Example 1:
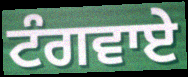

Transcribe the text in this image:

ਟੰਗਵਾਏ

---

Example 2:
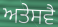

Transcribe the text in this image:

ਅਤੇਸਵੈ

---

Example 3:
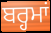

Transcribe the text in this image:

ਬਰ੍ਹਮਾਂ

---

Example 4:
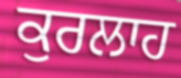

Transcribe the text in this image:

ਕੁਰਲਾਹ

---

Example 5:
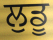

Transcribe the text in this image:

ਲੁਡੂ